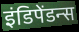
इंडिपेंडन्स